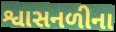
શ્વાસનળીના